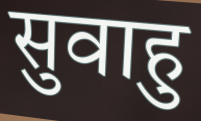
सुवाहु